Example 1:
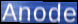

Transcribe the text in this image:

Anode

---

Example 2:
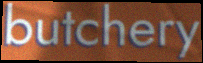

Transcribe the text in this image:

butchery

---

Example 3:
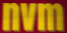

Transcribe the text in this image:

nvm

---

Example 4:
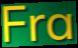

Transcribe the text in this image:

Fra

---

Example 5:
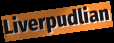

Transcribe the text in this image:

Liverpudlian